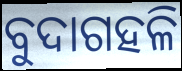
ବୁଦାଗହଳି